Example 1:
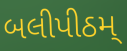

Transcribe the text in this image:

બલીપીઠમ્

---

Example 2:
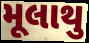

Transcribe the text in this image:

મૂલાથુ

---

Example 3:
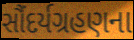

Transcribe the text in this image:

સૌંદર્યગ્રહણના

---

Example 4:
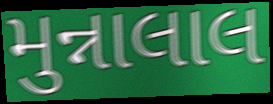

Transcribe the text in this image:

મુન્નાલાલ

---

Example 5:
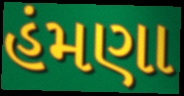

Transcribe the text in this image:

હંમણા